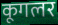
कूगलर